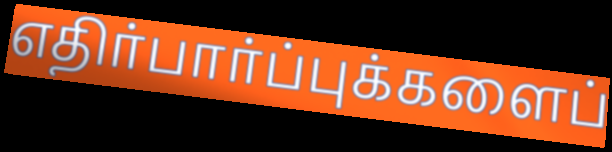
எதிர்பார்ப்புக்களைப்